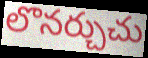
లొనర్చుచు